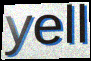
yell